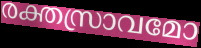
രക്തസ്രാവമോ